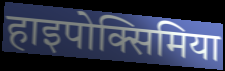
हाइपोक्सिमिया